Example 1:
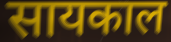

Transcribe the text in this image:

सायकाल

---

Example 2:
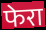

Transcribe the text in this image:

फेरा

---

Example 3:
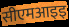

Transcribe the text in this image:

सीएमआइइ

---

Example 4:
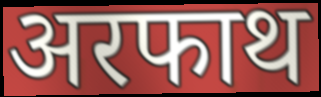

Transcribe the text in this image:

अरफाथ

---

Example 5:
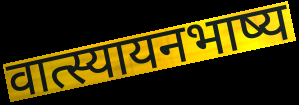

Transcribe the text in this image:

वात्स्यायनभाष्य